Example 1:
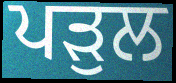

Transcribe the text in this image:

ਪੜੁਲ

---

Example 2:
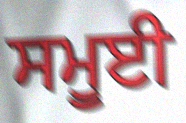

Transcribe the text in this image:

ਸਮੂਈ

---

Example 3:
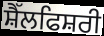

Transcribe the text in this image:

ਸ਼ੈੱਲਫਿਸ਼ਰੀ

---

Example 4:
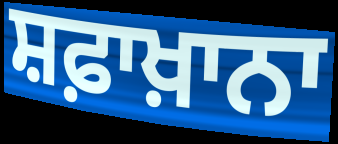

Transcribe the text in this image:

ਸ਼ਫ਼ਾਖ਼ਾਨਾ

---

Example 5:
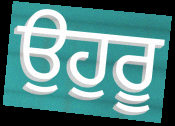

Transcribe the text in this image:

ਉਹੁਰੂ